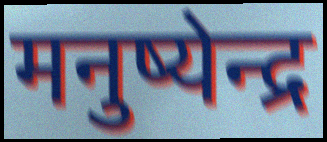
मनुष्येन्द्र